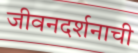
जीवनदर्शनाची